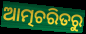
ଆତ୍ମଚରିତରୁ